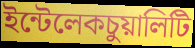
ইন্টেলেকচুয়ালিটি